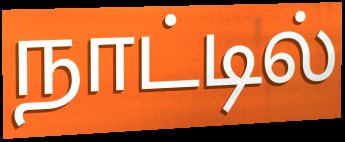
நாட்டில்